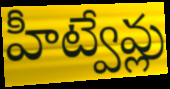
హీట్వేవ్లు